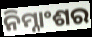
ନିମ୍ନାଂଶର